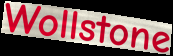
Wollstone